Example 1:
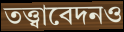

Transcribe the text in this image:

তত্ত্বাবেদনও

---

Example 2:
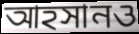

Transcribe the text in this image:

আহসানও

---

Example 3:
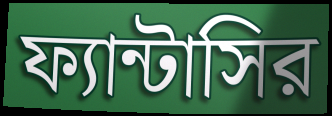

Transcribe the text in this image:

ফ্যান্টাসির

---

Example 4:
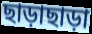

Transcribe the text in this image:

ছাড়াছাড়া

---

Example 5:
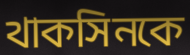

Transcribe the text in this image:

থাকসিনকে